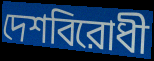
দেশবিরোধী